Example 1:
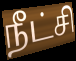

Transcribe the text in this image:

நீட்சி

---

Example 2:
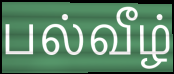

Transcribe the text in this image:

பல்வீழ்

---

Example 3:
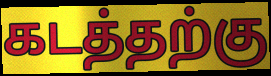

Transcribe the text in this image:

கடத்தற்கு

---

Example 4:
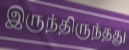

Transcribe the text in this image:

இருந்திருந்தது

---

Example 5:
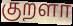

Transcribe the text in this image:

குறளா